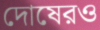
দোষেরও